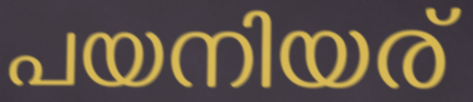
പയനിയര്